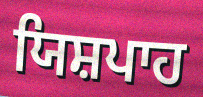
ਯਿਸ਼ਪਾਹ